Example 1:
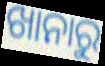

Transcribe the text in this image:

ଖାନାରୁ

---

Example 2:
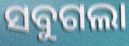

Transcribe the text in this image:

ସବୁଗଲା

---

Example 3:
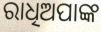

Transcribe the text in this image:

ରାଧିଅପାଙ୍କ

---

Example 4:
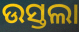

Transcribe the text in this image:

ଉସ୍ତଲା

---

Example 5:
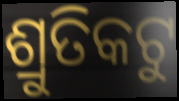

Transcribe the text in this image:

ଶ୍ରୁତିକଟୁ